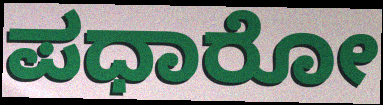
ಪಧಾರೋ